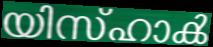
യിസ്ഹാൿ